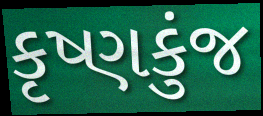
કૃષ્ણકુંજ